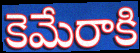
కెమేరాకి